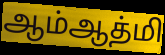
ஆம்ஆத்மி